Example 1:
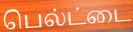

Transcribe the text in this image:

பெல்ட்டை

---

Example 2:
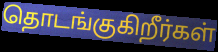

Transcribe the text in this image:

தொடங்குகிறீர்கள்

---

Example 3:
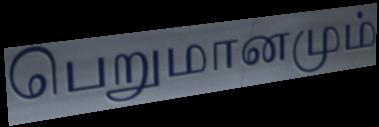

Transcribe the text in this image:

பெறுமானமும்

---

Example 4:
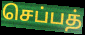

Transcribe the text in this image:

செப்பத்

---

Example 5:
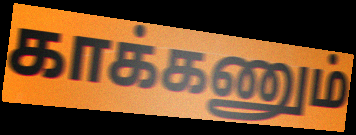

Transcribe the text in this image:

காக்கணும்